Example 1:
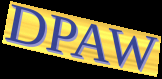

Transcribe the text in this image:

DPAW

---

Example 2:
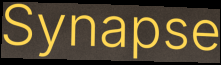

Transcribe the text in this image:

Synapse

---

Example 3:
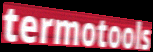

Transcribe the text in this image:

termotools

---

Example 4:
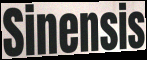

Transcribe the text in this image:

Sinensis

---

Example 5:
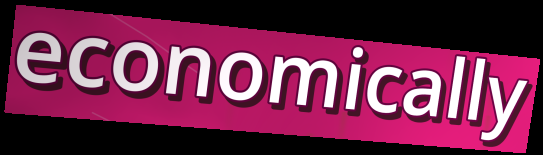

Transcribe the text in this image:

economically